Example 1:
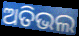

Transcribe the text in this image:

ଅତିଭଲ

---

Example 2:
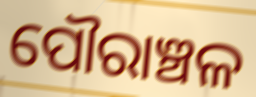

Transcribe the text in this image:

ପୌରାଞ୍ଚଳ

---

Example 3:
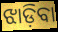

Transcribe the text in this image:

ଝାଡ଼ିବା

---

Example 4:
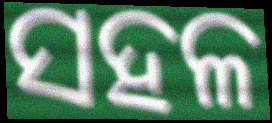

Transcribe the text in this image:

ସହଳ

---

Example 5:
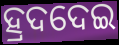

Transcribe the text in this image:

ହ୍ରଦଦେଇ